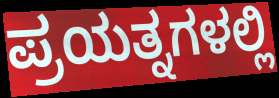
ಪ್ರಯತ್ನಗಳಲ್ಲಿ